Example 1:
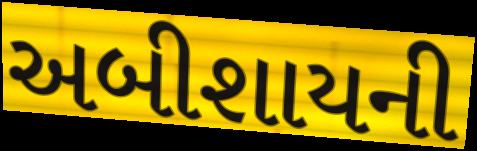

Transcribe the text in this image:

અબીશાયની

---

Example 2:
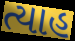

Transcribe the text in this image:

ત્યાહ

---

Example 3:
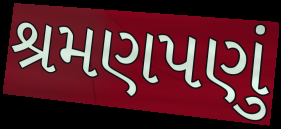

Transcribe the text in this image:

શ્રમણપણું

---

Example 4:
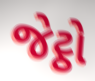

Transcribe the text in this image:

જેટ્ઠો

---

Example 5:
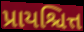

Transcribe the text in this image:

પ્રાયશ્ચિત્ત